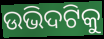
ଉଭିଦଟିକୁ